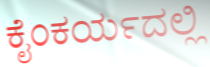
ಕೈಂಕರ್ಯದಲ್ಲಿ